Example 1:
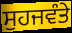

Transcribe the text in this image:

ਸੁਹਜਵੰਤੇ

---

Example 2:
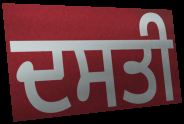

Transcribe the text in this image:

ਦਸਤੀ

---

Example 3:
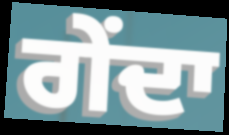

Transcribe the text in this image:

ਗੇਂਦਾ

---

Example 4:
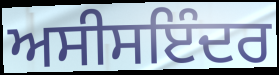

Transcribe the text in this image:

ਅਸੀਸਇੰਦਰ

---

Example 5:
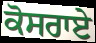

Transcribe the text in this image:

ਕੋਸਰਾਏ